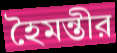
হৈমন্তীর